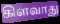
கிளவாது